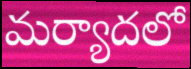
మర్యాదలో